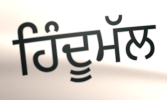
ਹਿੰਦੂਮੱਲ